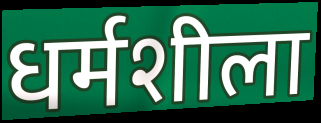
धर्मशीला